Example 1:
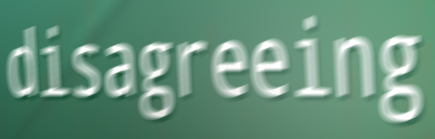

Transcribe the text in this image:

disagreeing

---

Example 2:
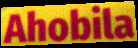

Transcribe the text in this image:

Ahobila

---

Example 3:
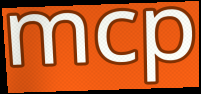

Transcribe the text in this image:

mcp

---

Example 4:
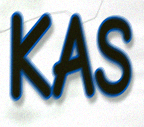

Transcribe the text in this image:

KAS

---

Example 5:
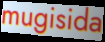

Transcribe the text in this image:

mugisida